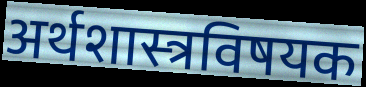
अर्थशास्त्रविषयक